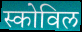
स्कोविल